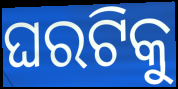
ଘରଟିକୁ